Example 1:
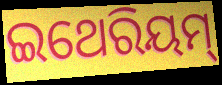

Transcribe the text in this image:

ଇଥେରିୟମ୍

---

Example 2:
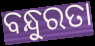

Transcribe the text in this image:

ବନ୍ଧୁରତା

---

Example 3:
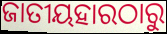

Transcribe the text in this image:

ଜାତୀୟହାରଠାରୁ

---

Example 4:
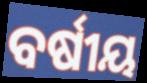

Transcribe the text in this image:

ବର୍ଷୀୟ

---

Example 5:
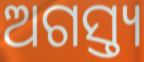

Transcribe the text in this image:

ଅଗସ୍ତ୍ୟ